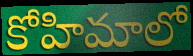
కోహిమాలో